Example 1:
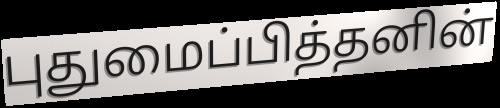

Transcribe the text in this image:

புதுமைப்பித்தனின்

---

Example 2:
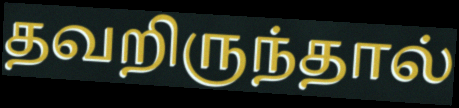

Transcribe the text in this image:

தவறிருந்தால்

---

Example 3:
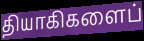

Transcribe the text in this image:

தியாகிகளைப்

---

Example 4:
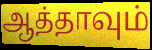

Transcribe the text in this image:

ஆத்தாவும்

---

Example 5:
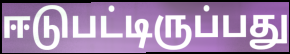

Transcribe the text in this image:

ஈடுபட்டிருப்பது